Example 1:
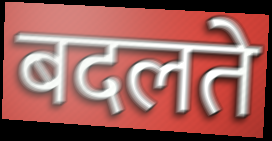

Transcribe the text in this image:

बदलते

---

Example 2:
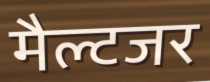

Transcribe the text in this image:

मैल्टजर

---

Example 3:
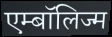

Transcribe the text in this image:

एम्बॉलिज्म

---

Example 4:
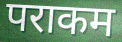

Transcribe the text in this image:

पराकम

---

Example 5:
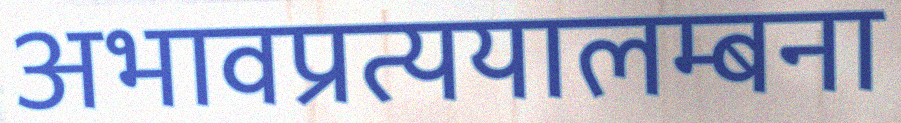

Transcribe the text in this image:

अभावप्रत्ययालम्बना